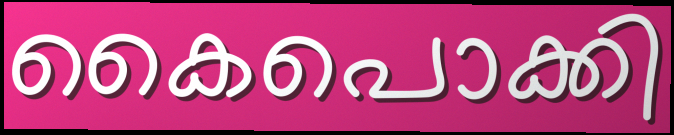
കൈപൊക്കി